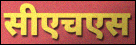
सीएचएस